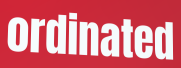
ordinated